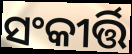
ସଂକୀର୍ତ୍ତି